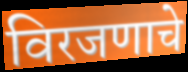
विरजणाचे